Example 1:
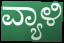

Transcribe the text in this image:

ವ್ಯಾಳಿ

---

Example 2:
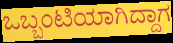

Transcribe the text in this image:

ಒಬ್ಬಂಟಿಯಾಗಿದ್ದಾಗ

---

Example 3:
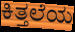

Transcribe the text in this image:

ಕಿತ್ತಲೆಯ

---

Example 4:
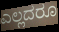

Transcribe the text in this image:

ಎಲ್ಲದರೂ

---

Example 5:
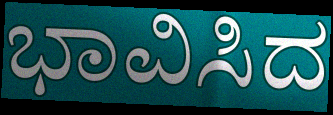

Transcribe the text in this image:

ಭಾವಿಸಿದ